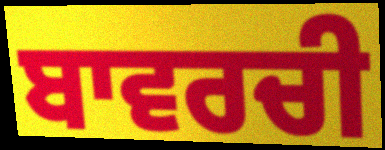
ਬਾਵਰਚੀ